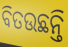
ବିତଉଛନ୍ତି